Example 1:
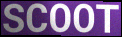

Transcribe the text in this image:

SCOOT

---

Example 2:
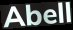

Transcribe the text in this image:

Abell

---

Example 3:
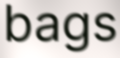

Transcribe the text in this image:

bags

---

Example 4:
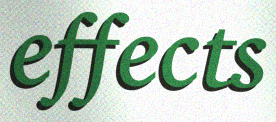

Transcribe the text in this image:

effects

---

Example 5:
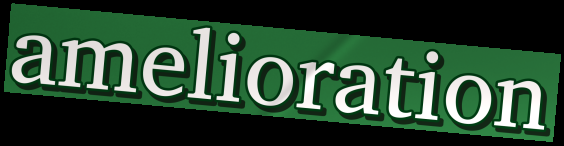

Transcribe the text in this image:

amelioration